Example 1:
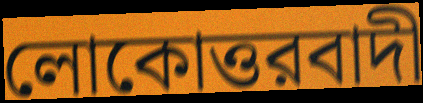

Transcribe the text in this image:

লোকোত্তরবাদী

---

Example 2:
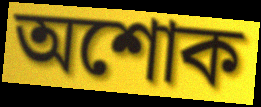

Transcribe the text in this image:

অশোক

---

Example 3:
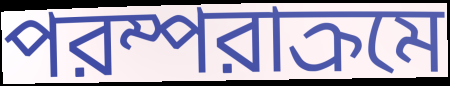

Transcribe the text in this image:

পরম্পরাক্রমে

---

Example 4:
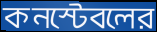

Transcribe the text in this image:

কনস্টেবলের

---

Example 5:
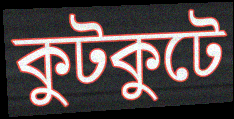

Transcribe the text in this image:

কুটকুটে